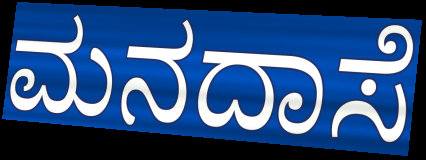
ಮನದಾಸೆ